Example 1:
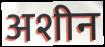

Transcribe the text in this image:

अशीन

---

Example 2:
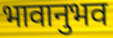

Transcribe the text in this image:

भावानुभव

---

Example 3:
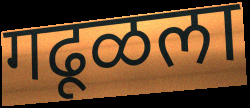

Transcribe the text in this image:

गढूळला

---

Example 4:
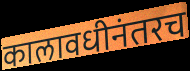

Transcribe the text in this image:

कालावधीनंतरच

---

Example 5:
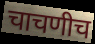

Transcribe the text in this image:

चाचणीच